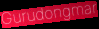
Gurudongmar